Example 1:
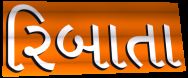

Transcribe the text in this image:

રિબાતા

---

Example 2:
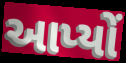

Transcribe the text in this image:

આપ્યોં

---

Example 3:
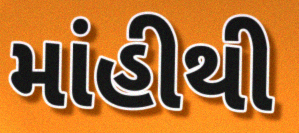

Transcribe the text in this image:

માંહીથી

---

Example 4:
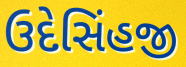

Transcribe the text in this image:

ઉદેસિંહજી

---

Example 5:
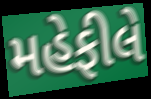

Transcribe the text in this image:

મહેફીલે